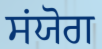
ਸਂਯੋਗ